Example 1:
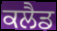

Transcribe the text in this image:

ਕਲੈਡ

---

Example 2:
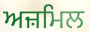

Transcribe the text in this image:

ਅਜ਼ਮਿਲ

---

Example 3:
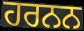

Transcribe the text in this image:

ਹਰਨਨ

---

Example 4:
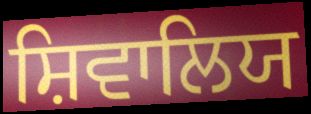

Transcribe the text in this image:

ਸ਼ਿਵਾਲਿਯ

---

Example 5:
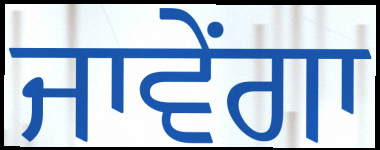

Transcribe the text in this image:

ਜਾਵੇਂਗਾ